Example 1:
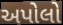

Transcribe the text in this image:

અપોલો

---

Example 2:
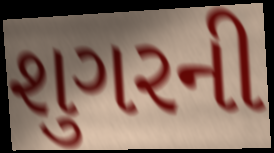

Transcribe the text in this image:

શુગરની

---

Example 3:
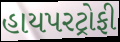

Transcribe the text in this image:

હાયપરટ્રોફી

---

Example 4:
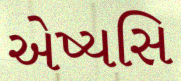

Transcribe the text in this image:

એષ્યસિ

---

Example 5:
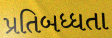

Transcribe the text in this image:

પ્રતિબધ્ધતા